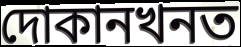
দোকানখনত